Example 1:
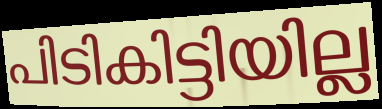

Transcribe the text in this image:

പിടികിട്ടിയില്ല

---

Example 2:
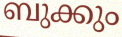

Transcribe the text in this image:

ബുക്കും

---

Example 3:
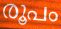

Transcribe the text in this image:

രൂപം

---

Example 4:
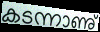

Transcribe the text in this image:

കടന്നാണു്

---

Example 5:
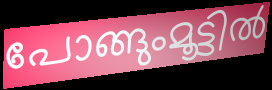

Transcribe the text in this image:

പോങ്ങുംമൂട്ടിൽ